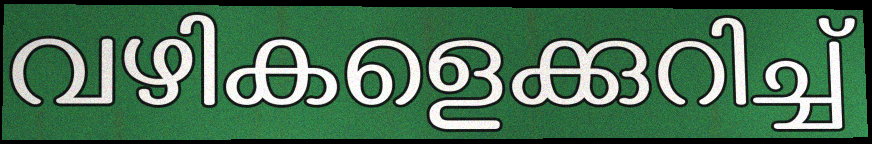
വഴികളെക്കുറിച്ച്